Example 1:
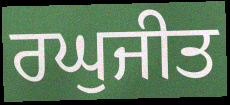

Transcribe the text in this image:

ਰਘੁਜੀਤ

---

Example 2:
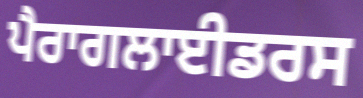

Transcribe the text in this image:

ਪੈਰਾਗਲਾਈਡਰਸ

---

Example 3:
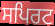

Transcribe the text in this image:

ਸਪਿਰਟ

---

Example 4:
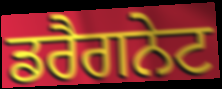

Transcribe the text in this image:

ਡਰੈਗਨੇਟ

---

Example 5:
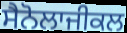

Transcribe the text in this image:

ਸੈਨੋਲਾਜੀਕਲ